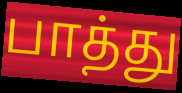
பாத்து